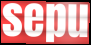
sepu